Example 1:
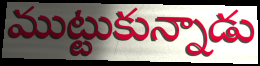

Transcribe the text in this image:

ముట్టుకున్నాడు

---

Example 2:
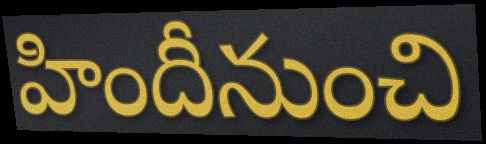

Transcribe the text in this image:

హిందీనుంచి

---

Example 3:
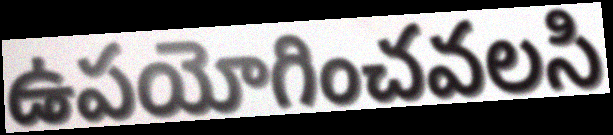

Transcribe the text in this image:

ఉపయోగించవలసి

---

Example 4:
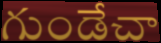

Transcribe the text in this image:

గుండేచా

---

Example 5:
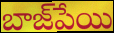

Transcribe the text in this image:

బాజ్‌పేయి